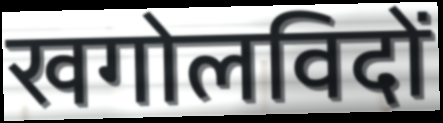
खगोलविदों